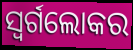
ସ୍ୱର୍ଗଲୋକର